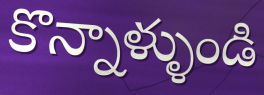
కొన్నాళ్ళుండి